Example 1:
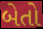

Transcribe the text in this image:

બેતો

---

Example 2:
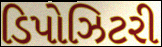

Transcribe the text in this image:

ડિપોઝિટરી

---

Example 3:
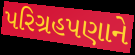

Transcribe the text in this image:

પરિગ્રહપણાને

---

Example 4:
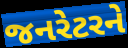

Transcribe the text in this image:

જનરેટરને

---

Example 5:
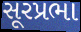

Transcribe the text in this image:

સૂરપ્રભા